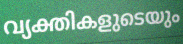
വ്യക്തികളുടെയും